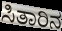
ಸಿತಾರಿನ